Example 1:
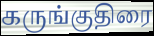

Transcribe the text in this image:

கருங்குதிரை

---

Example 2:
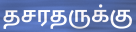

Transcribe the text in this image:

தசரதருக்கு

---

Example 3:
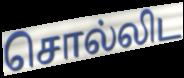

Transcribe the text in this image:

சொல்லிட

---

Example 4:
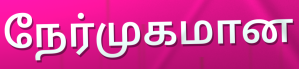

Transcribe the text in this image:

நேர்முகமான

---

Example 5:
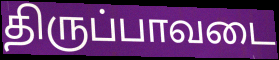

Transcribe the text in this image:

திருப்பாவடை